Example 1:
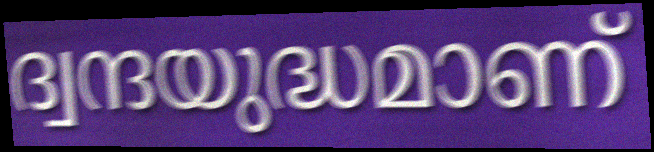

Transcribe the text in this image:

ദ്വന്ദയുദ്ധമാണ്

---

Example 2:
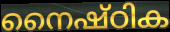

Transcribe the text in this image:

നൈഷ്ഠിക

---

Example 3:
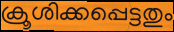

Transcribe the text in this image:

ക്രൂശിക്കപ്പെട്ടതും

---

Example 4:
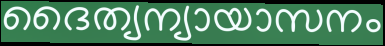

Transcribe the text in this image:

ദൈത്യന്യായാസനം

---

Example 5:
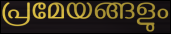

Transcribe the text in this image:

പ്രമേയങ്ങളും